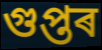
গুপ্তৰ